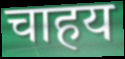
चाहय